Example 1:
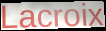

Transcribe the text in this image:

Lacroix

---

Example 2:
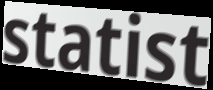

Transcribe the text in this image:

statist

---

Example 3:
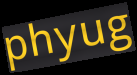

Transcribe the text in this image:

phyug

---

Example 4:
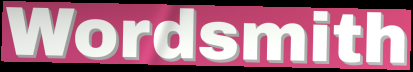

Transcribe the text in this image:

Wordsmith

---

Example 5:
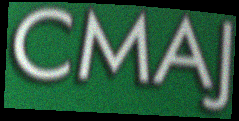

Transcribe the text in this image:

CMAJ